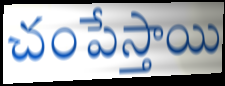
చంపేస్తాయి